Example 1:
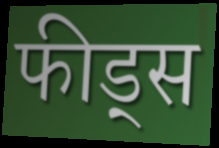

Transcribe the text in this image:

फीड्स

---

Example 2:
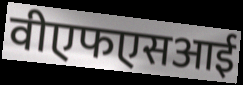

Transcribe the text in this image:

वीएफएसआई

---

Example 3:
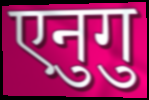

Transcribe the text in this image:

एनुगु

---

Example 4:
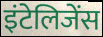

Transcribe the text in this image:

इंटेलिजेंस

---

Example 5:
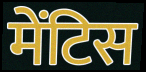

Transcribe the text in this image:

मेंटिस